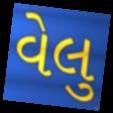
વેલુ